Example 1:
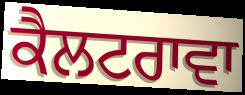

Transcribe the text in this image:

ਕੈਲਟਰਾਵਾ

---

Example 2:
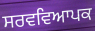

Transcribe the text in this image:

ਸਰਵਵਿਆਪਕ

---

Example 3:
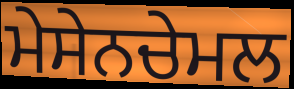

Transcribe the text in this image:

ਮੇਸੇਨਚੇਮਲ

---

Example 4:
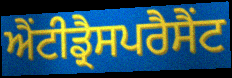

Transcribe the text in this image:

ਐਂਟੀਡ੍ਰੈਸਪਰੈਸੈਂਟ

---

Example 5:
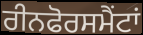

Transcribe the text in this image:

ਰੀਨਫੋਰਸਮੈਂਟਾਂ